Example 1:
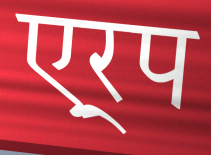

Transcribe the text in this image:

एर्प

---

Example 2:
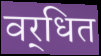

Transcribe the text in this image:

वर्धित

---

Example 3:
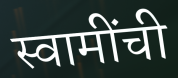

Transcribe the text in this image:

स्वामींची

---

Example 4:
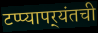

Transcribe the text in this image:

टप्प्यापर्यंतची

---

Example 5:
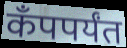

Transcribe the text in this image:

कँपपर्यंत